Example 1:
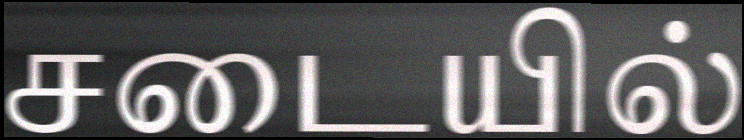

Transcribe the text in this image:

சடையில்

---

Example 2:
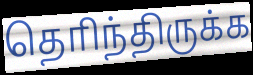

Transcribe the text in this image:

தெரிந்திருக்க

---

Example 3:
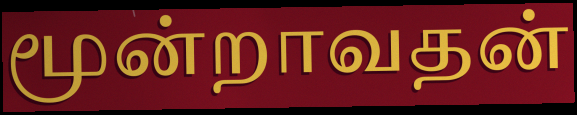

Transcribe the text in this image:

மூன்றாவதன்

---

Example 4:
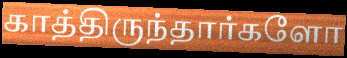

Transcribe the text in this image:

காத்திருந்தார்களோ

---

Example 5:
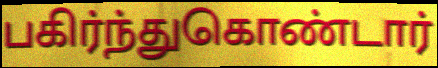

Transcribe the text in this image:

பகிர்ந்துகொண்டார்